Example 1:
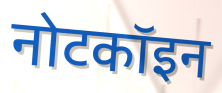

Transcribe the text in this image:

नोटकॉइन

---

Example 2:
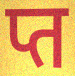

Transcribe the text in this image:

प्त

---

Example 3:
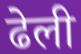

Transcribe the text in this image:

ढेली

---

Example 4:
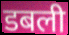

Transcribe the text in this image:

डबली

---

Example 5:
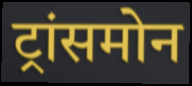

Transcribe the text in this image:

ट्रांसमोन